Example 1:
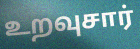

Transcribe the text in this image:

உறவுசார்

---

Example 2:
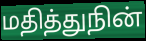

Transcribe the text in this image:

மதித்துநின்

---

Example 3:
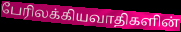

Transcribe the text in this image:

பேரிலக்கியவாதிகளின்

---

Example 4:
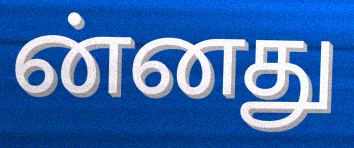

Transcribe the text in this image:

ன்னது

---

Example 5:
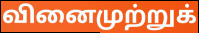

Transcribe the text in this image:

வினைமுற்றுக்